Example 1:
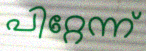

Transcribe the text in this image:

പിറ്റേന്ന്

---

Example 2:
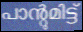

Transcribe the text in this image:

പാന്റുമിട്ട്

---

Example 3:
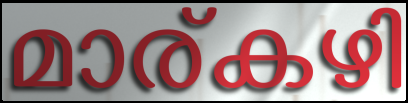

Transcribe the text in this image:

മാര്കഴി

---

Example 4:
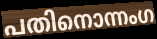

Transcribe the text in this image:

പതിനൊന്നംഗ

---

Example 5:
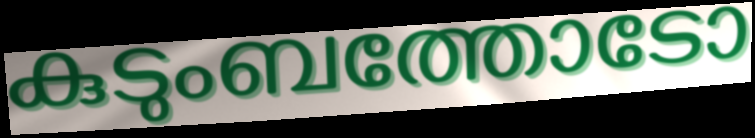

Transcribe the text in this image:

കുടുംബത്തോടോ